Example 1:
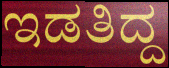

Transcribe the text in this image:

ಇಡತಿದ್ದ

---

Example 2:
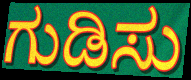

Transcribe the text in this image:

ಗುಡಿಸು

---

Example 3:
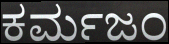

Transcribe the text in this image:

ಕರ್ಮಜಂ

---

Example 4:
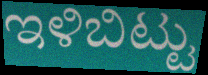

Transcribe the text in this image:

ಇಳಿಬಿಟ್ಟು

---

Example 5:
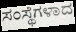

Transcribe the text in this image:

ಸಂಸ್ಥೆಗಳಾದ